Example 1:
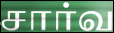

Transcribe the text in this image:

சார்வ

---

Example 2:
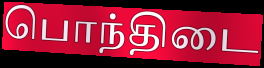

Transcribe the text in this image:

பொந்திடை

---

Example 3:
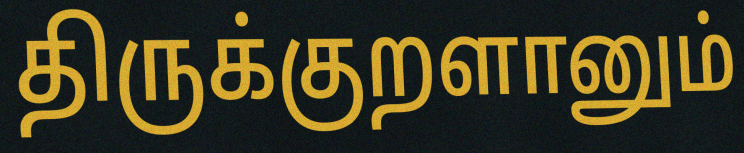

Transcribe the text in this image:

திருக்குறளானும்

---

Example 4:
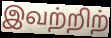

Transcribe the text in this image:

இவற்றிற்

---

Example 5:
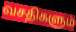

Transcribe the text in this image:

வசதிகளும்